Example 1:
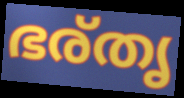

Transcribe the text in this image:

ഭര്തൃ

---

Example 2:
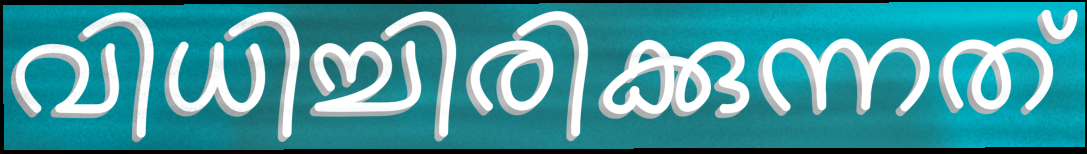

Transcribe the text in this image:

വിധിച്ചിരിക്കുന്നത്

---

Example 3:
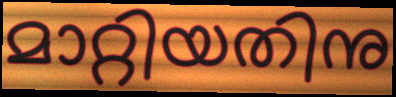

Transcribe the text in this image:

മാറ്റിയതിനു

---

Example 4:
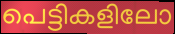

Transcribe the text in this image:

പെട്ടികളിലോ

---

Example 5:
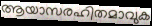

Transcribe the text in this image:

ആയാസരഹിതമാവുക